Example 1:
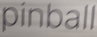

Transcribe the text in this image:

pinball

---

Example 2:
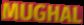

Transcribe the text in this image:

MUGHAL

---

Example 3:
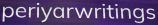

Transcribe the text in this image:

periyarwritings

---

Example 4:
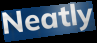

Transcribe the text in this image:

Neatly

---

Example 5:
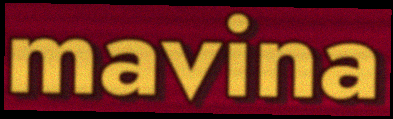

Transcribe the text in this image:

mavina